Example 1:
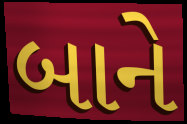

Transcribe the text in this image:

બાને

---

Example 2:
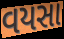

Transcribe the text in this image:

વયસા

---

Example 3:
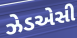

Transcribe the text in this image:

ઝેડએસી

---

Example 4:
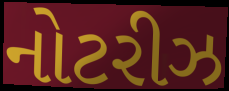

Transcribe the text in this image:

નોટરીઝ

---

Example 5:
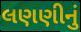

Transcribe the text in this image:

લણણીનું